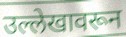
उल्लेखावरून